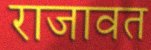
राजावत